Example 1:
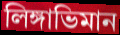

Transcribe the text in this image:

লিঙ্গাভিমান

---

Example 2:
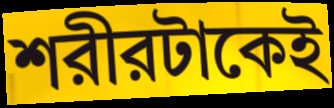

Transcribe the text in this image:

শরীরটাকেই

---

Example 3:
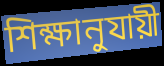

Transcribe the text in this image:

শিক্ষানুযায়ী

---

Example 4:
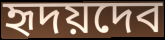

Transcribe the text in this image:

হৃদয়দেব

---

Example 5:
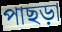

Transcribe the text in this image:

পাছড়া